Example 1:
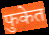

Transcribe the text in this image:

फुकेत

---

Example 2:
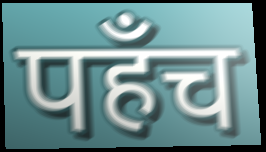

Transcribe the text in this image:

पहँच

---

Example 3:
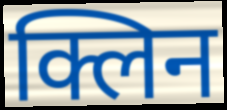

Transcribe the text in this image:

क्लिन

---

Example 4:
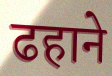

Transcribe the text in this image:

ढहाने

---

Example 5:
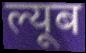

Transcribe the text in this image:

ल्यूब